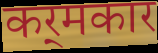
कर्मकार